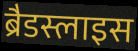
ब्रैडस्लाइस